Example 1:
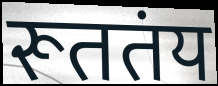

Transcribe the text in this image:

रूततंय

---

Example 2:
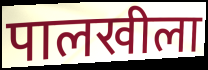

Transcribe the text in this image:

पालखीला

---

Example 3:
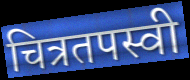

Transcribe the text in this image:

चित्रतपस्वी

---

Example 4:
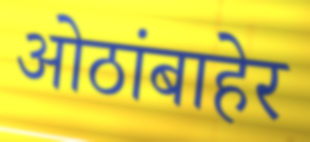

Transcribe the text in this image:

ओठांबाहेर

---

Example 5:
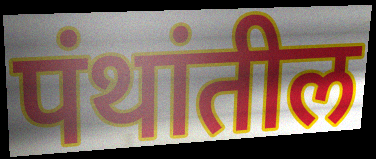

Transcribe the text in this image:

पंथांतील